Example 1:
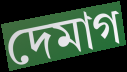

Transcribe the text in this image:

দেমাগ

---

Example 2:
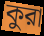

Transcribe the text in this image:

কুরা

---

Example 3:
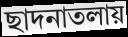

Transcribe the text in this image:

ছাদনাতলায়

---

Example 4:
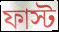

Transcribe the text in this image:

ফাস্ট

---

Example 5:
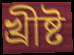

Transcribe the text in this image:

খ্রীষ্ট